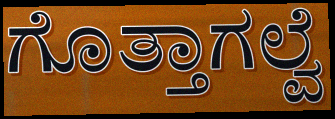
ಗೊತ್ತಾಗಲ್ವೆ